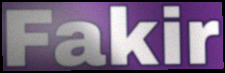
Fakir